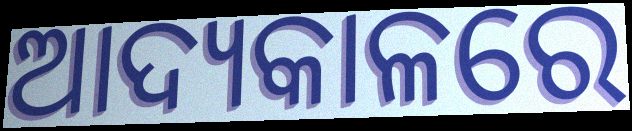
ଆଦ୍ୟକାଳରେ